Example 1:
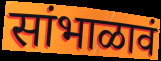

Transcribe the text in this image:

सांभाळावं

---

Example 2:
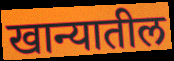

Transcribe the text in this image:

खान्यातील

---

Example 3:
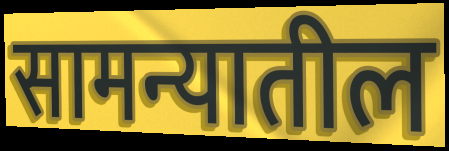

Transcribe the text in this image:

सामन्यातील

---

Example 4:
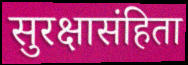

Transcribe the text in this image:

सुरक्षासंहिता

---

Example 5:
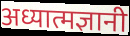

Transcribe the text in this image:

अध्यात्मज्ञानी